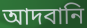
আদবানি